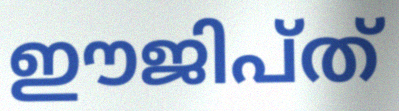
ഈജിപ്ത്